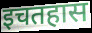
इचतहास